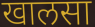
खालसा